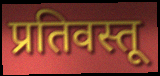
प्रतिवस्तू